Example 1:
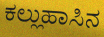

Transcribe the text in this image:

ಕಲ್ಲುಹಾಸಿನ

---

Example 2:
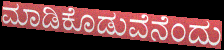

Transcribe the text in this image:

ಮಾಡಿಕೊಡುವೆನೆಂದು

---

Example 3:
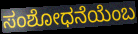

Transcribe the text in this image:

ಸಂಶೋಧನೆಯೆಂಬ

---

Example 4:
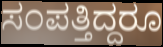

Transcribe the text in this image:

ಸಂಪತ್ತಿದ್ದರೂ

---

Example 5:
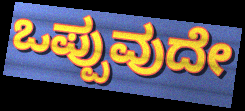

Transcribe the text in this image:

ಒಪ್ಪುವುದೇ